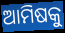
ଆମିଷକୁ